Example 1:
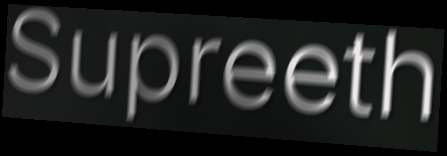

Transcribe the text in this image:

Supreeth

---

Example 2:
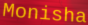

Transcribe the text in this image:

Monisha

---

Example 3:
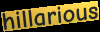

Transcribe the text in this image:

hillarious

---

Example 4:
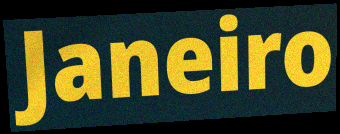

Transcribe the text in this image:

Janeiro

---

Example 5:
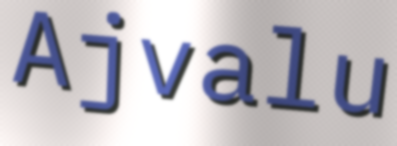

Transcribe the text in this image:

Ajvalu